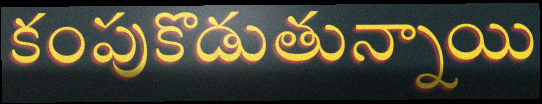
కంపుకొడుతున్నాయి